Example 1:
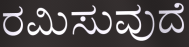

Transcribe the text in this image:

ರಮಿಸುವುದೆ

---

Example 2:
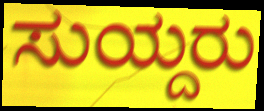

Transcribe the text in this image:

ಸುಯ್ದರು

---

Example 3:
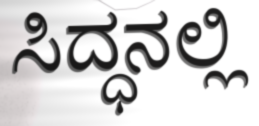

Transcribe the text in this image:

ಸಿದ್ಧನಲ್ಲಿ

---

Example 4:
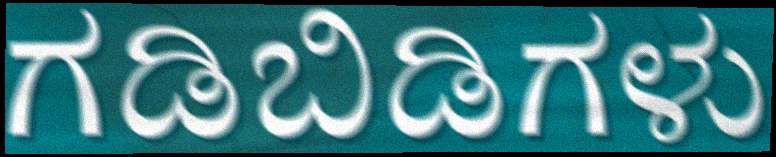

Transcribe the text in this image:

ಗಡಿಬಿಡಿಗಳು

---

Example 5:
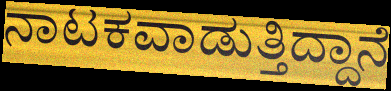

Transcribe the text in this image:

ನಾಟಕವಾಡುತ್ತಿದ್ದಾನೆ